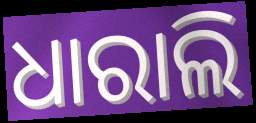
ଧାରାଲି